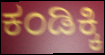
ಕಂಡಿಕ್ಕಿ